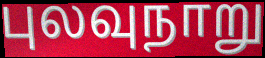
புலவுநாறு